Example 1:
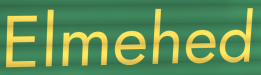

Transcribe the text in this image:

Elmehed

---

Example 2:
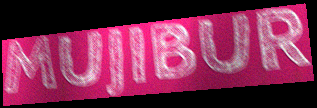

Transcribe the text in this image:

MUJIBUR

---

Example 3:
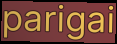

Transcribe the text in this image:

parigai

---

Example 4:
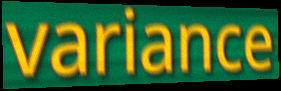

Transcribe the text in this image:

variance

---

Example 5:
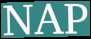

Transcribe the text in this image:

NAP